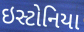
ઇસ્ટોનિયા